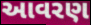
આવરણ